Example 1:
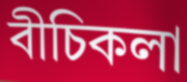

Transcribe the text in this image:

বীচিকলা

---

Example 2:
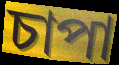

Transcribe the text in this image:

চাপা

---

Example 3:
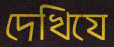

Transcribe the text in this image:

দেখিযে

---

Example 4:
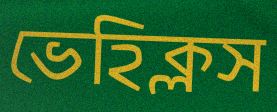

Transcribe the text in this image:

ভেহিক্লস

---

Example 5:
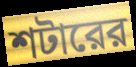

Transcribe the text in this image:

শটারের